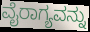
ವೈರಾಗ್ಯವನ್ನು